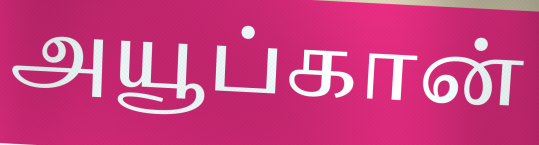
அயூப்கான்